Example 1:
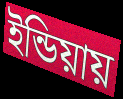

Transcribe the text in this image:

ইন্ডিয়ায়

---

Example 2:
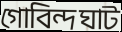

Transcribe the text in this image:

গোবিন্দঘাট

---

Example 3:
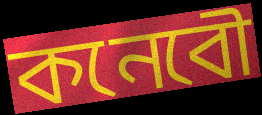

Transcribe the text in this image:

কনেবৌ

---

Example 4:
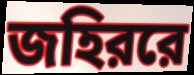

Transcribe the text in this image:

জহিররে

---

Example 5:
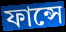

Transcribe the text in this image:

ফান্সে